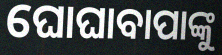
ଘୋଘାବାପାଙ୍କୁ